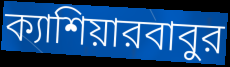
ক্যাশিয়ারবাবুর